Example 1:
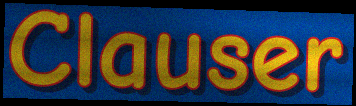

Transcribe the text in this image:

Clauser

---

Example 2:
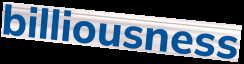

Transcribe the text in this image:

billiousness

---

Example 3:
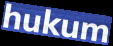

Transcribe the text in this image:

hukum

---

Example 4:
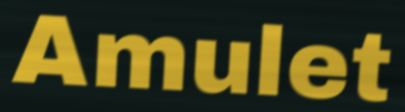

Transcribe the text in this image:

Amulet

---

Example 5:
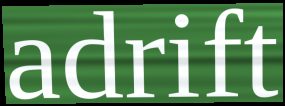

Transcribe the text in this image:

adrift